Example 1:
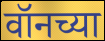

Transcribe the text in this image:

वॉनच्या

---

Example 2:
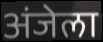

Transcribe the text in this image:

अंजेला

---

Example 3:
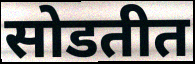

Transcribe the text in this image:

सोडतीत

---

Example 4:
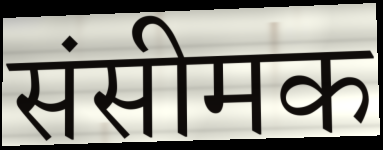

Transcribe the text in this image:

संसीमक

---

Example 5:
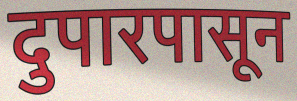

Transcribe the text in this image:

दुपारपासून